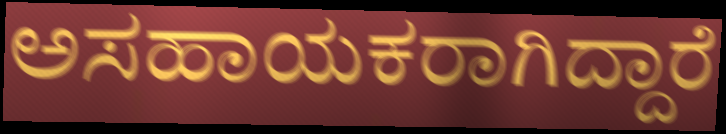
ಅಸಹಾಯಕರಾಗಿದ್ದಾರೆ